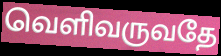
வெளிவருவதே